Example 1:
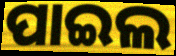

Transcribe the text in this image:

ପାଇଲ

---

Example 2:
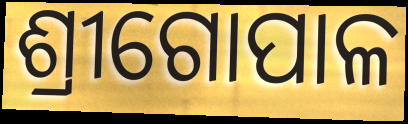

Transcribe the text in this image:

ଶ୍ରୀଗୋପାଳ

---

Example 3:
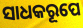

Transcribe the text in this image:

ସାଧକରୂପେ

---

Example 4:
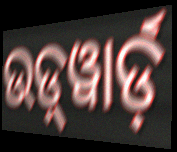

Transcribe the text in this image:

ଉଡ଼୍‍ୱାର୍ଡ଼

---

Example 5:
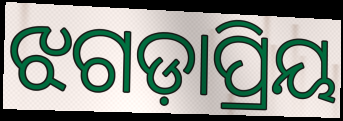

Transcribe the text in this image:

ଝଗଡ଼ାପ୍ରିୟ